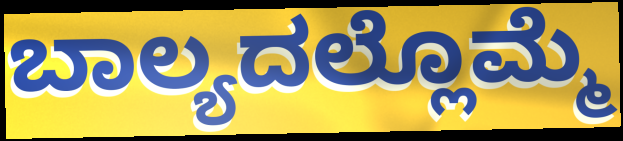
ಬಾಲ್ಯದಲ್ಲೊಮ್ಮೆ